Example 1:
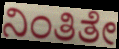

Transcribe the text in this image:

ನಿಂತಿತೇ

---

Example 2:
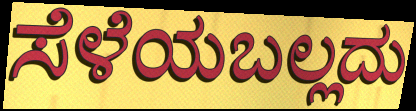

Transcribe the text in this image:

ಸೆಳೆಯಬಲ್ಲದು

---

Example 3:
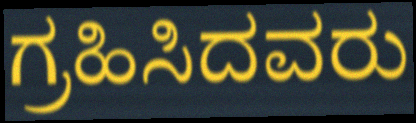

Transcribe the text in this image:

ಗ್ರಹಿಸಿದವರು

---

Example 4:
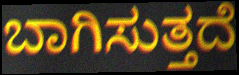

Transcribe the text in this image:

ಬಾಗಿಸುತ್ತದೆ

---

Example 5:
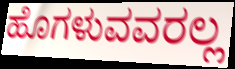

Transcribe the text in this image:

ಹೊಗಳುವವರಲ್ಲ